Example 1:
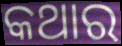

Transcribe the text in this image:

କଥାର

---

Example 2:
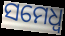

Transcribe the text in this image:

ସମେଧ୍ୱ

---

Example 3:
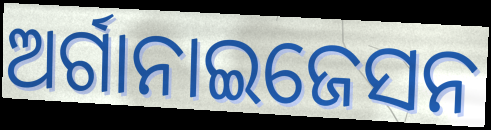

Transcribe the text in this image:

ଅର୍ଗାନାଇଜେସନ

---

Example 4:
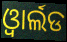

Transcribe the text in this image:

ଓ୍ବାର୍ଲଡ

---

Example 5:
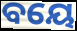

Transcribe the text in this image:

ବୟେ